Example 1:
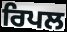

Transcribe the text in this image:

ਰਿਪਲ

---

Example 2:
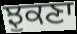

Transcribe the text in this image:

ਝੁਕਣਾ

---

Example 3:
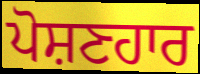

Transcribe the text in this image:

ਪੋਸ਼ਣਹਾਰ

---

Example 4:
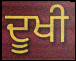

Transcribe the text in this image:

ਦੂਖੀ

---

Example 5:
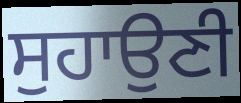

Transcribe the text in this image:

ਸੁਹਾਉਣੀ